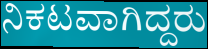
ನಿಕಟವಾಗಿದ್ದರು